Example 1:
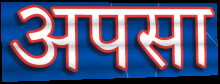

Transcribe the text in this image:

अपसा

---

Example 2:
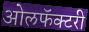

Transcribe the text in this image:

ओलफॅक्टरी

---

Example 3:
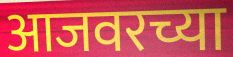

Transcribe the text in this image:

आजवरच्या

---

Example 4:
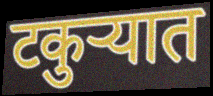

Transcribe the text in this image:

टकुऱ्यात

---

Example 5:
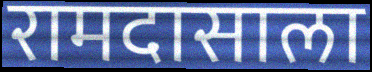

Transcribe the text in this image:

रामदासाला